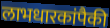
लाभधारकांपैकी